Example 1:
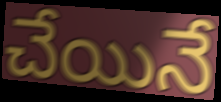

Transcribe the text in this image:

చేయినే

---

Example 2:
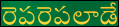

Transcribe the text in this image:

రెపరెపలాడే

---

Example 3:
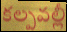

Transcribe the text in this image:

కల్పవల్లీ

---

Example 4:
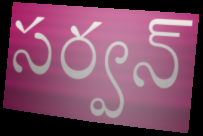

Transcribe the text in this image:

సర్వన్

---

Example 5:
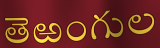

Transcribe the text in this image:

తెఱంగుల